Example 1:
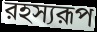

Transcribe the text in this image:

রহস্যরূপ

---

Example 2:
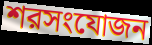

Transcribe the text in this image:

শরসংযোজন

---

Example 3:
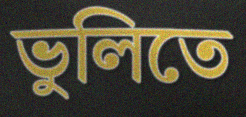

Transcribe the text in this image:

ভুলিতে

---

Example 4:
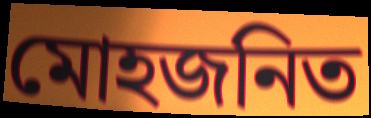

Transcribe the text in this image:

মোহজনিত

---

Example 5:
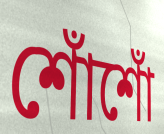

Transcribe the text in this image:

শোঁশোঁ